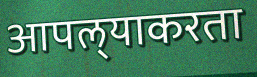
आपल्याकरता